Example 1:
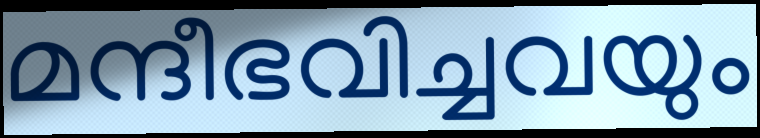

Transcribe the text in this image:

മന്ദീഭവിച്ചവയും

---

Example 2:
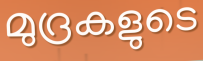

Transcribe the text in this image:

മുദ്രകളുടെ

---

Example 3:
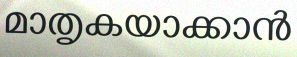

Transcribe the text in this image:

മാതൃകയാക്കാൻ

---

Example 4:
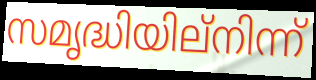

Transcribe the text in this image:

സമൃദ്ധിയില്നിന്ന്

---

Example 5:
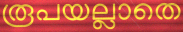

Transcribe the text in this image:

രൂപയല്ലാതെ